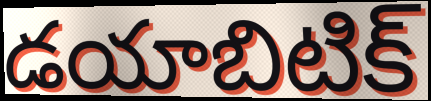
డయాబిటిక్